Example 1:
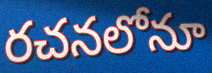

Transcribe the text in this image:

రచనలోనూ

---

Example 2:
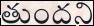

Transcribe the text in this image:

తుందని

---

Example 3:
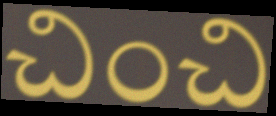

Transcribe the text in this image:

చించి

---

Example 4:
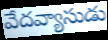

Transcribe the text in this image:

వేదవ్యాసుడు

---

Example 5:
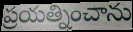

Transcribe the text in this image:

ప్రయత్నించాను